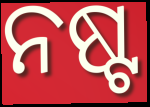
ନଷ୍ଟ